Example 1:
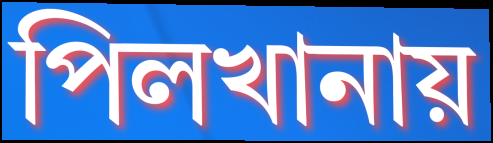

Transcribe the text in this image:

পিলখানায়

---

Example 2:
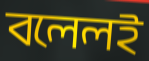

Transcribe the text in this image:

বলেলই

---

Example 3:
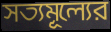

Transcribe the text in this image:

সত্যমূল্যের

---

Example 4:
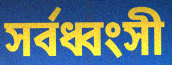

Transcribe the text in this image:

সর্বধ্বংসী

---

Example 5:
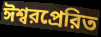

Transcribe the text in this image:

ঈশ্বরপ্রেরিত